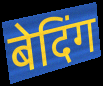
बेदिंग